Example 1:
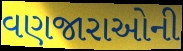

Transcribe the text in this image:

વણજારાઓની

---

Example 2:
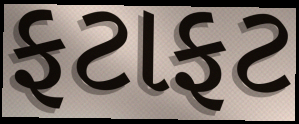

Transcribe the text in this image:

ફટાફટ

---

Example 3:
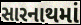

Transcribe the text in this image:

સારનાથમાં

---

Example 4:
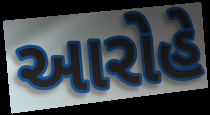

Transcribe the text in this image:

આરોહે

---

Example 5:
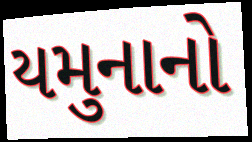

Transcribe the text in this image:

યમુનાનો